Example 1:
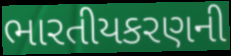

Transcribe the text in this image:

ભારતીયકરણની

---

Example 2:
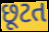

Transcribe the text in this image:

છૂટત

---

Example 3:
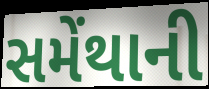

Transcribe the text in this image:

સમેંથાની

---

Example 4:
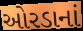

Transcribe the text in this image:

ઓરડાનાં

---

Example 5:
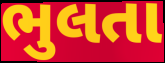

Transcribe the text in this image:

ભુલતા